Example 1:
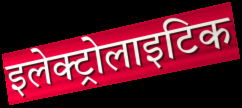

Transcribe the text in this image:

इलेक्ट्रोलाइटिक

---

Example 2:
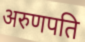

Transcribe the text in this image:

अरुणपति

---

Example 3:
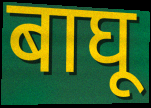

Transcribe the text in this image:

बाघू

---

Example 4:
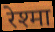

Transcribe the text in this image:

रेश्मा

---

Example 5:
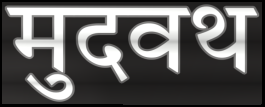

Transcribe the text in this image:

मुदवथ